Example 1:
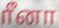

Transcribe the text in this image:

ரீனா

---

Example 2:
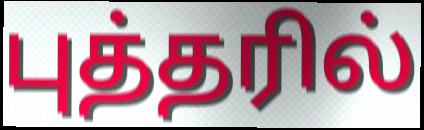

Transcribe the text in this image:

புத்தரில்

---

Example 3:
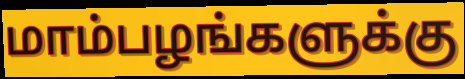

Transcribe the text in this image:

மாம்பழங்களுக்கு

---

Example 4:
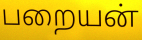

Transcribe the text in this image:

பறையன்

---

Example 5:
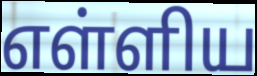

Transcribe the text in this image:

எள்ளிய